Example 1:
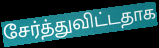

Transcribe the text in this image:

சேர்த்துவிட்டதாக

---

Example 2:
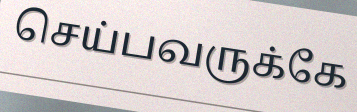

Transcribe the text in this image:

செய்பவருக்கே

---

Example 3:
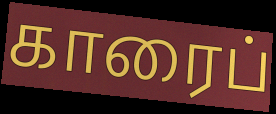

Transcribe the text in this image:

காரைப்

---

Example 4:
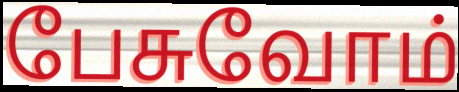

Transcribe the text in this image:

பேசுவோம்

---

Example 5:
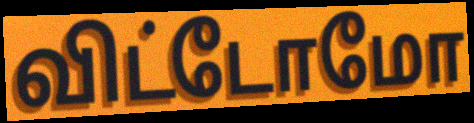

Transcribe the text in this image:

விட்டோமோ